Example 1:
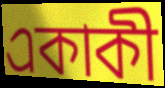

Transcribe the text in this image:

একাকী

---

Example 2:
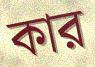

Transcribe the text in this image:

কার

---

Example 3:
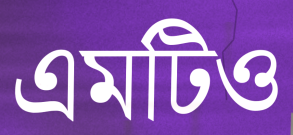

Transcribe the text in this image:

এমটিও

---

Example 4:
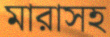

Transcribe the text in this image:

মারাসহ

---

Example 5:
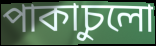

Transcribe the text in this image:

পাকাচুলো